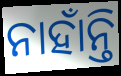
ନାହାଁନ୍ତି